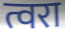
त्वरा